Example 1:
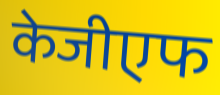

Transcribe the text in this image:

केजीएफ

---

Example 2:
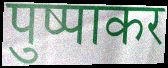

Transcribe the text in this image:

पुष्पाकर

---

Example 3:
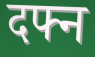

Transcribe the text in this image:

दफ्न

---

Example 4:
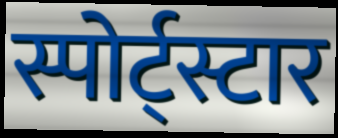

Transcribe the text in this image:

स्पोर्ट्स्टार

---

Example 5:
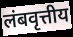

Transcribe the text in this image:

लंबवृत्तीय